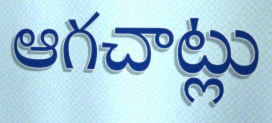
ఆగచాట్లు